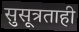
सुसूत्रताही